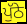
ਪੁੱਠੇ